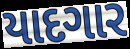
યાદગાર